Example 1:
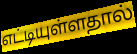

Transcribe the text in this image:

எட்டியுள்ளதால்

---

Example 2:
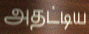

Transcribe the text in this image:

அதட்டிய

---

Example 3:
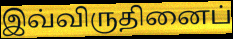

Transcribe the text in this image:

இவ்விருதினைப்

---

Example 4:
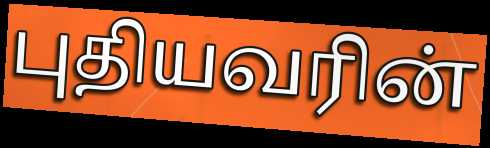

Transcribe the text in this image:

புதியவரின்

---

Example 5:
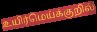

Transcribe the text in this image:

உயிர்மெய்க்குறில்